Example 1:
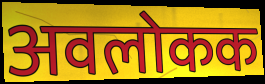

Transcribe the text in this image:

अवलोकक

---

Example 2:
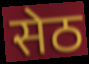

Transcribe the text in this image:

सेठ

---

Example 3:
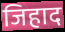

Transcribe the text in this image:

जिहाद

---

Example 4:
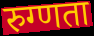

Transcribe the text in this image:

रुग्णता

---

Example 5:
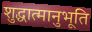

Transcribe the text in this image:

शुद्धात्मानुभूति